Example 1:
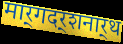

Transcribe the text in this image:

मार्गदर्शनार्थ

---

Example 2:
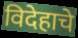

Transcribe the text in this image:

विदेहाचे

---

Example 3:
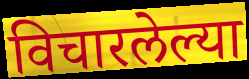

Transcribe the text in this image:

विचारलेल्या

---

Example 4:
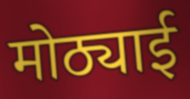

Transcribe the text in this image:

मोठ्याई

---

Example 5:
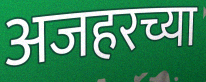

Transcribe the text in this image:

अजहरच्या